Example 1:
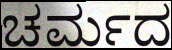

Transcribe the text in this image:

ಚರ್ಮದ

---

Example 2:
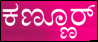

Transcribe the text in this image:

ಕಣ್ಣೂರ್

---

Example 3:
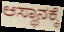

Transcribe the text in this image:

ಆಸ್ಥಾನಕ್ಕೆ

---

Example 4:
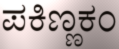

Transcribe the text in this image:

ಪಕಿಣ್ಣಕಂ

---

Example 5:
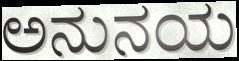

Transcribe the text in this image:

ಅನುನಯ